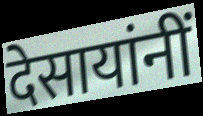
देसायांनीं